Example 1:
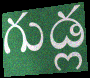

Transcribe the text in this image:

గుడ్ల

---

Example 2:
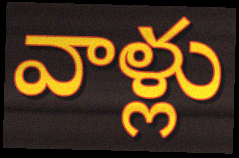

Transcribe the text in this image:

వాళ్లు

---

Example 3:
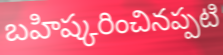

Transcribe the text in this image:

బహిష్కరించినప్పటి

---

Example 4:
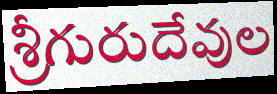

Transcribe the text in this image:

శ్రీగురుదేవుల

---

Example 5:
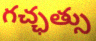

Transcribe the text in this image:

గచ్ఛత్సు